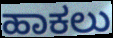
ಹಾಕಲು